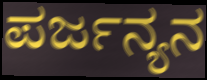
ಪರ್ಜನ್ಯನ